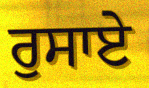
ਰੁਸਾਏ